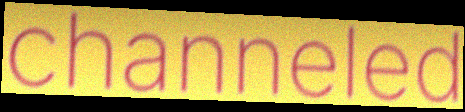
channeled